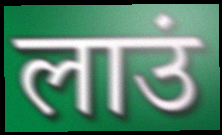
लाउं